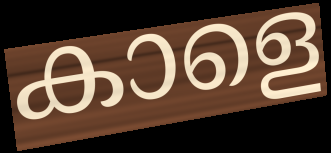
കാളെ